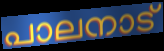
പാലനാട്